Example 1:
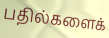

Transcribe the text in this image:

பதில்களைக்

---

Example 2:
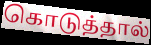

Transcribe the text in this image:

கொடுத்தால்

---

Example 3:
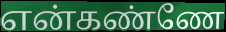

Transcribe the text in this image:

என்கண்ணே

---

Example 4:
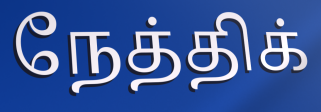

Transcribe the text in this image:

நேத்திக்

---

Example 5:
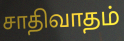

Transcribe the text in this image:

சாதிவாதம்